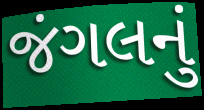
જંગલનું